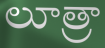
లూత్రా